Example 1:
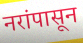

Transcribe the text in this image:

नरांपासून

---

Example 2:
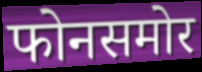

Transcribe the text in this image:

फोनसमोर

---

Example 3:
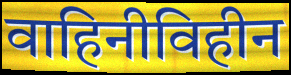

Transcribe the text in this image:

वाहिनीविहीन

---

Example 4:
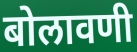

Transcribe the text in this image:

बोलावणी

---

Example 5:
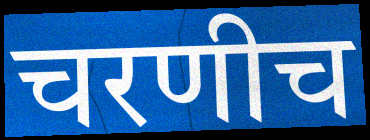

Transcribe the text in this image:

चरणीच